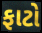
ફાટો